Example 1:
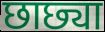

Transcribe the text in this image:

छाछ्या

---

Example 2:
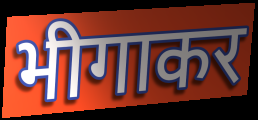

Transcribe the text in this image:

भीगाकर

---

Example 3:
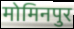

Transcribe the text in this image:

मोमिनपुर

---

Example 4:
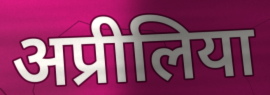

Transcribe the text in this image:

अप्रीलिया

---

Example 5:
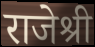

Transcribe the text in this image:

राजेश्री